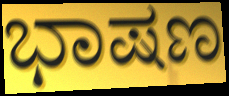
ಭಾಷಣ